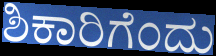
ಶಿಕಾರಿಗೆಂದು